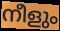
നീളും